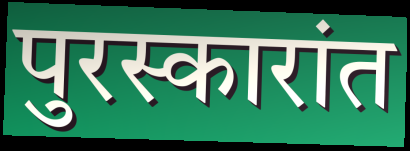
पुरस्कारांत